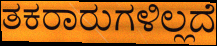
ತಕರಾರುಗಳಿಲ್ಲದೆ